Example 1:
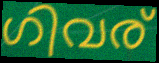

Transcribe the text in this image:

ഗിവര്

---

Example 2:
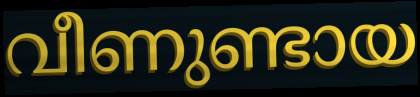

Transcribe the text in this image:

വീണുണ്ടായ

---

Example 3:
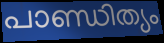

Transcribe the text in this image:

പാണ്ഡിത്യം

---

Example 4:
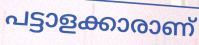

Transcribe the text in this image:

പട്ടാളക്കാരാണ്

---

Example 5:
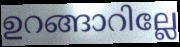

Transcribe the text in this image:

ഉറങ്ങാറില്ലേ